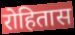
रोहितास